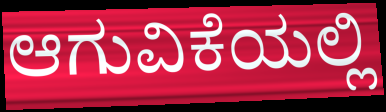
ಆಗುವಿಕೆಯಲ್ಲಿ